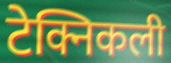
टेक्निकली